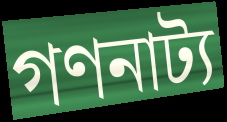
গণনাট্য